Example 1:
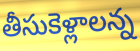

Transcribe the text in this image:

తీసుకెళ్లాలన్న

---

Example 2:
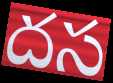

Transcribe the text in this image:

దస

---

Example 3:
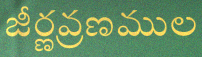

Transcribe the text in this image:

జీర్ణవ్రణముల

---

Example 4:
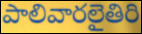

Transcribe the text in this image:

పాలివారలైతిరి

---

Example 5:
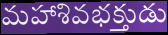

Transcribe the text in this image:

మహాశివభక్తుడు